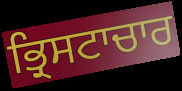
ਭ੍ਰਿਸਟਾਚਾਰ